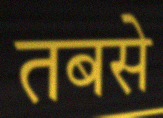
तबसे